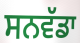
ਸਨਵੱਡਾ